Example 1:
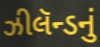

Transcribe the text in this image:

ઝીલૅન્ડનું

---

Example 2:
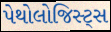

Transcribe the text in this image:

પેથોલોજિસ્ટ્સ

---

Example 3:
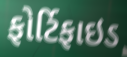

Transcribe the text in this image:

ફોર્ટિફાઇડ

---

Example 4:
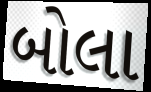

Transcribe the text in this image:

બોલા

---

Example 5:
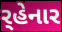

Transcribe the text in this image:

ર્‌હેનાર